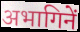
अभागिनें